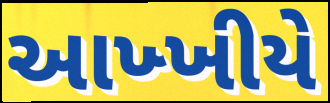
આખ્ખીયે